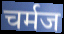
चर्मज